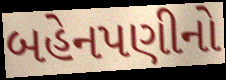
બહેનપણીનો